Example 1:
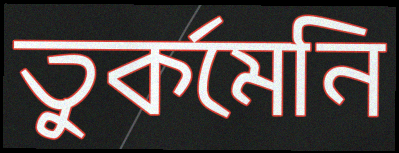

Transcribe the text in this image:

তুর্কমেনি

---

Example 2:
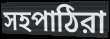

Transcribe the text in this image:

সহপাঠিরা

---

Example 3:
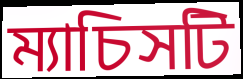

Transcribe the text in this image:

ম্যাচিসটি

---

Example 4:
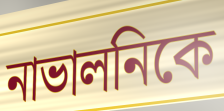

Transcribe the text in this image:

নাভালনিকে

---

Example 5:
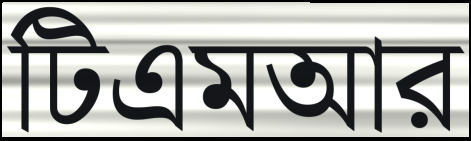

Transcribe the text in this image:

টিএমআর